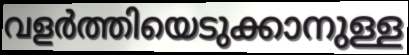
വളർത്തിയെടുക്കാനുള്ള